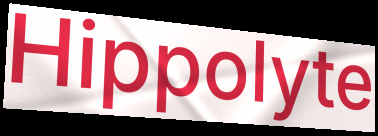
Hippolyte